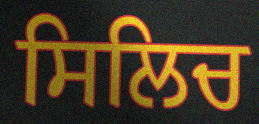
ਸਿਲਿਚ